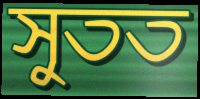
সুতত